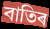
বাতিৰ